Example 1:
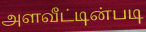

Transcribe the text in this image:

அளவீட்டின்படி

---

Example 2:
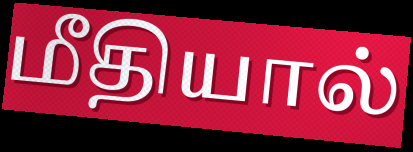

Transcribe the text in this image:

மீதியால்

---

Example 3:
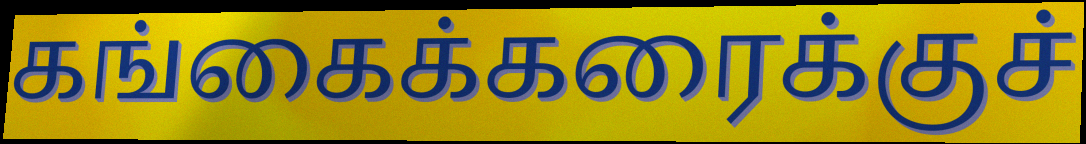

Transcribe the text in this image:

கங்கைக்கரைக்குச்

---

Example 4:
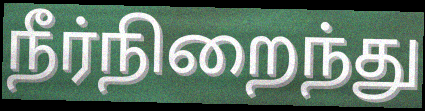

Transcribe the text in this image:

நீர்நிறைந்து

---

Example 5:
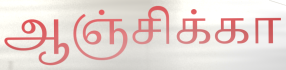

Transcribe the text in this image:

ஆஞ்சிக்கா